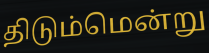
திடும்மென்று